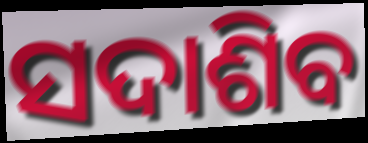
ସଦାଶିବ